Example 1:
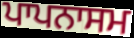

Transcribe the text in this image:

ਪਾਪਨਾਸਮ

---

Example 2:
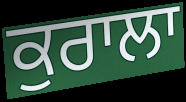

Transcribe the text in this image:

ਕੁਰਾਲਾ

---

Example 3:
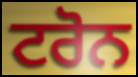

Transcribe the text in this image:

ਟਰੋਨ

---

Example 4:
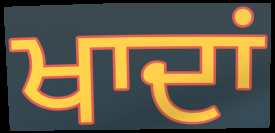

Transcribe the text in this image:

ਖਾਦਾਂ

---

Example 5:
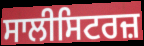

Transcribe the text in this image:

ਸਾਲੀਸਿਟਰਜ਼